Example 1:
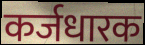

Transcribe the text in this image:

कर्जधारक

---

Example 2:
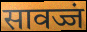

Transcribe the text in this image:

सावज्जं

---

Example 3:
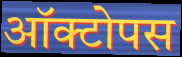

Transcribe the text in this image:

ऑक्टोपस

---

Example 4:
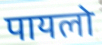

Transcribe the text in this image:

पायलो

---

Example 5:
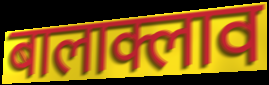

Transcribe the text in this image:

बालाक्लाव